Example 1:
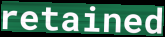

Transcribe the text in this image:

retained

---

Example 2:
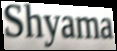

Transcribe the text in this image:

Shyama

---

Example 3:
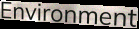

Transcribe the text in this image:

Environment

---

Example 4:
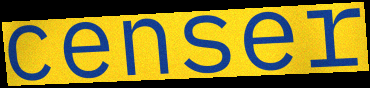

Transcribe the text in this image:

censer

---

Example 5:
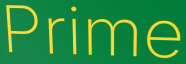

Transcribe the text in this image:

Prime